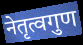
नेतृत्वगुण